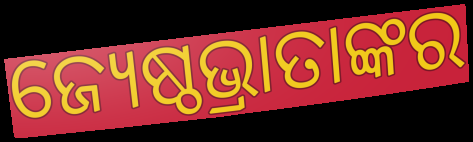
ଜ୍ୟେଷ୍ଠଭ୍ରାତାଙ୍କର